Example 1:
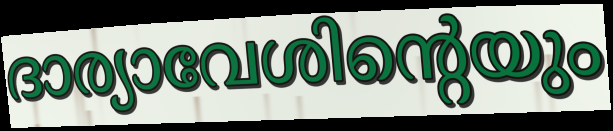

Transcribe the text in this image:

ദാര്യാവേശിന്റെയും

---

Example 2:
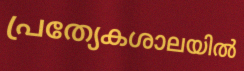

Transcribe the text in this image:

പ്രത്യേകശാലയിൽ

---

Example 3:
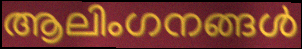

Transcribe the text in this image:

ആലിംഗനങ്ങൾ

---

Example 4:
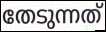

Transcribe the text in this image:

തേടുന്നത്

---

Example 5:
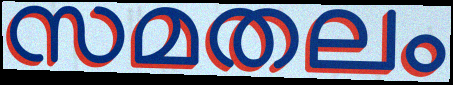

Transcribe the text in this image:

സമതലം